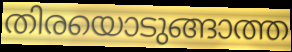
തിരയൊടുങ്ങാത്ത